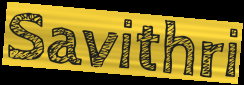
Savithri